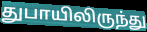
துபாயிலிருந்து